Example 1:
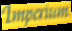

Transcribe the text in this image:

Imperium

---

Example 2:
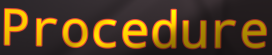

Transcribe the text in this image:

Procedure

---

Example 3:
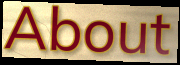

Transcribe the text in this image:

About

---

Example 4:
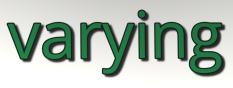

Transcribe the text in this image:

varying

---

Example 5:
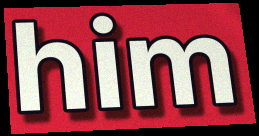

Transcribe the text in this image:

him